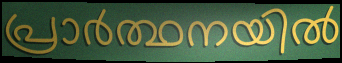
പ്രാർത്ഥനയിൽ